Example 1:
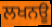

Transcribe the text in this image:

ਲਖਨਊ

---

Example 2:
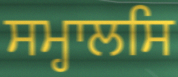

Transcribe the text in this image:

ਸਮ੍ਹ੍ਹਾਲਸਿ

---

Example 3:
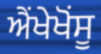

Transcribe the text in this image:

ਐਂਖੇਖੋਂਸੂ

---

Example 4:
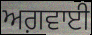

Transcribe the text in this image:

ਅਗ਼ਵਾਈ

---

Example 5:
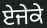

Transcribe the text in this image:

ਏਜੇਕੇ